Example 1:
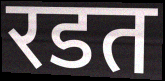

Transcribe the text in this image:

रडत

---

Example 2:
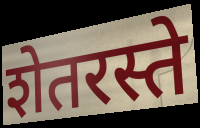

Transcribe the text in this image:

शेतरस्ते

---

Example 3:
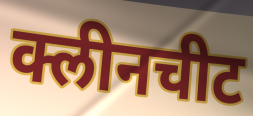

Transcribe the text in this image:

क्लीनचीट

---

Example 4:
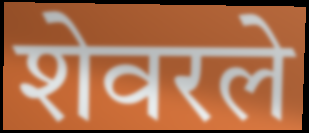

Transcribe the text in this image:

शेवरले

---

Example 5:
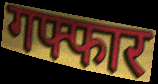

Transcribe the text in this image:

गफ्फार